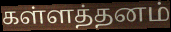
கள்ளத்தனம்